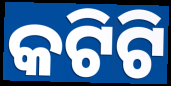
କଟିଟି